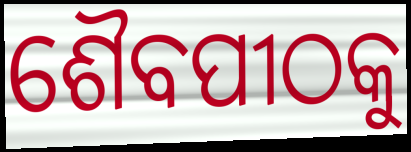
ଶୈବପୀଠକୁ